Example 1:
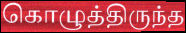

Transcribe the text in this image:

கொழுத்திருந்த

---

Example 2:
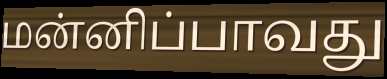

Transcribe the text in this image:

மன்னிப்பாவது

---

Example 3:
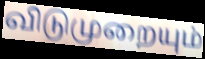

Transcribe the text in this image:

விடுமுறையும்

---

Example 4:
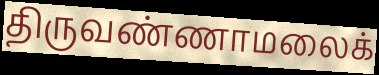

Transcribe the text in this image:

திருவண்ணாமலைக்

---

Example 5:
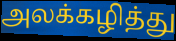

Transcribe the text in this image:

அலக்கழித்து